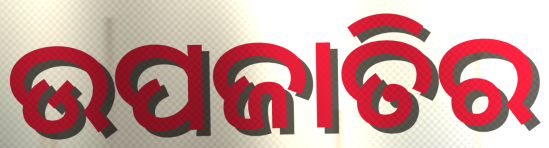
ଉପଜାତିର